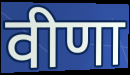
वीणा